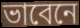
ভাবেনে